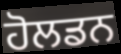
ਹੋਲਡਨ